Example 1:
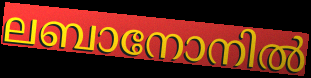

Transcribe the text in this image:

ലബാനോനിൽ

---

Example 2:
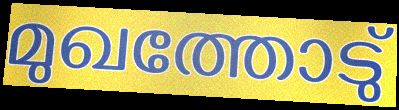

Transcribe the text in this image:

മുഖത്തോടു്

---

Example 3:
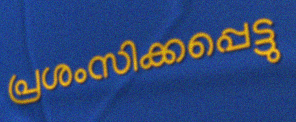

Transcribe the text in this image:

പ്രശംസിക്കപ്പെട്ടു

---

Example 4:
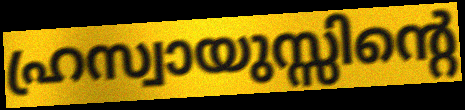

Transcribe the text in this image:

ഹ്രസ്വായുസ്സിന്റെ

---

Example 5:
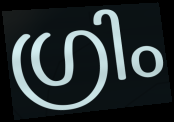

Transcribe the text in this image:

ഗ്രിം